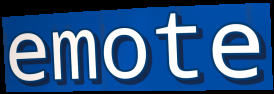
emote